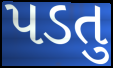
પડતુ